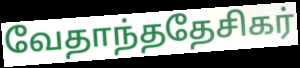
வேதாந்ததேசிகர்